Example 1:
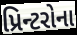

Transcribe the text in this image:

પ્રિન્ટરોના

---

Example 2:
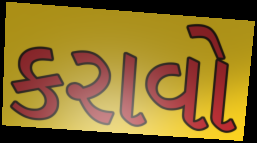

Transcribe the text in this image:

કરાવો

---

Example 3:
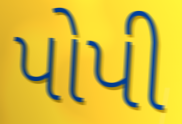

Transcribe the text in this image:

પોપી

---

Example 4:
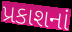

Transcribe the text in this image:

પ્રકાશનાં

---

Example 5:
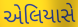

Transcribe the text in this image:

એલિયાસે